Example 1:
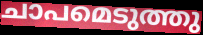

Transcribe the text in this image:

ചാപമെടുത്തു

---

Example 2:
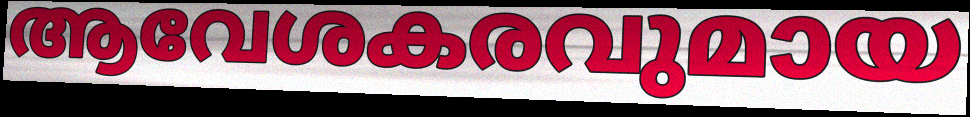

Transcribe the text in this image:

ആവേശകരവുമായ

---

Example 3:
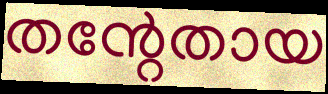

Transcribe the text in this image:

തന്റേതായ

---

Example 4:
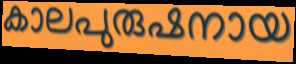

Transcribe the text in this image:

കാലപുരുഷനായ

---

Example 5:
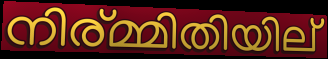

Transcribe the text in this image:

നിര്മ്മിതിയില്